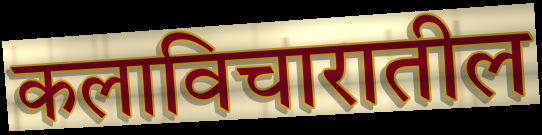
कलाविचारातील